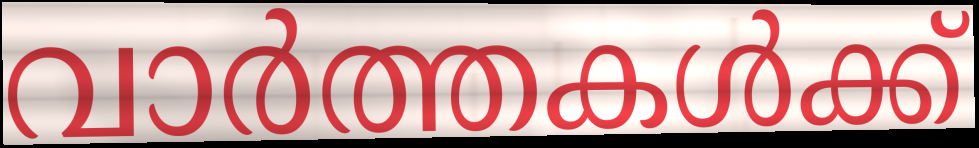
വാർത്തകൾക്ക്